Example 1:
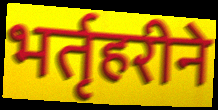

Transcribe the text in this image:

भर्तृहरीने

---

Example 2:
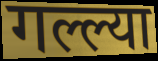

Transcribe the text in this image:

गल्ल्या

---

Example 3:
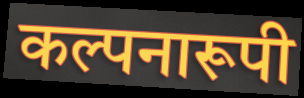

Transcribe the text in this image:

कल्पनारूपी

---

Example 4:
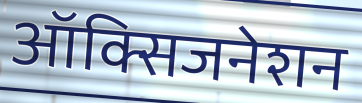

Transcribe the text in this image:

ऑक्सिजनेशन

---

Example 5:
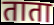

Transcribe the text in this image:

ताता